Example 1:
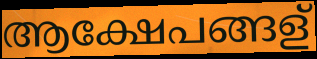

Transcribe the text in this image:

ആക്ഷേപങ്ങള്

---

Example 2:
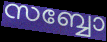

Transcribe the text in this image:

സബ്ബോ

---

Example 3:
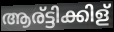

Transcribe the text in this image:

ആര്ട്ടിക്കിള്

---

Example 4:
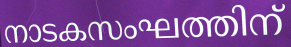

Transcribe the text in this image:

നാടകസംഘത്തിന്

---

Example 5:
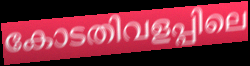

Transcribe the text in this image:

കോടതിവളപ്പിലെ